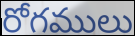
రోగములు